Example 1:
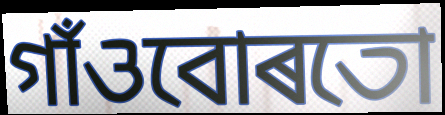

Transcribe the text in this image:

গাঁওবোৰতো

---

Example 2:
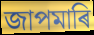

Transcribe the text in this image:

জাপমাৰি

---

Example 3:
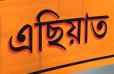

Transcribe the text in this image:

এছিয়াত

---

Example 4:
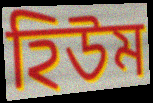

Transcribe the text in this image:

হিউম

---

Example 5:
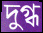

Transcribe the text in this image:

দুগ্ধ